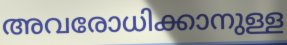
അവരോധിക്കാനുള്ള